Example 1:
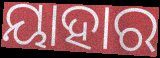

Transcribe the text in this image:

ୟାହାର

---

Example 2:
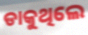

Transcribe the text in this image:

ଡାକୁଥିଲେ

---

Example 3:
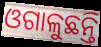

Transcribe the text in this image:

ଓଗାଳୁଛନ୍ତି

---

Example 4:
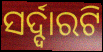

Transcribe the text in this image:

ସର୍ଦ୍ଦାରଟି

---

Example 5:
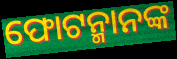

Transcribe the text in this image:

ଫୋଟନ୍ମାନଙ୍କ